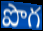
పొగ